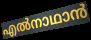
എൽനാഥാൻ